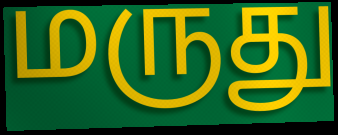
மருது